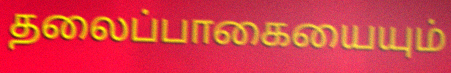
தலைப்பாகையையும்